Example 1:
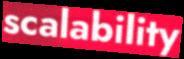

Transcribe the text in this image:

scalability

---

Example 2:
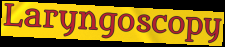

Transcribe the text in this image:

Laryngoscopy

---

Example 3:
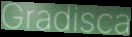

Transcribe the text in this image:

Gradisca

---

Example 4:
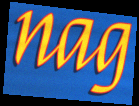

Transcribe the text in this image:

nag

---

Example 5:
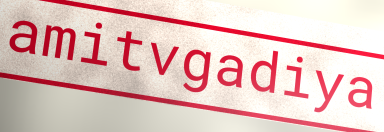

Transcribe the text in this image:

amitvgadiya